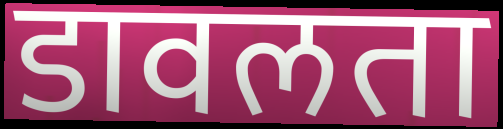
डावलता